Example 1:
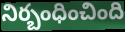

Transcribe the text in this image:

నిర్బంధించింది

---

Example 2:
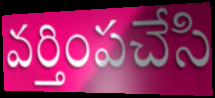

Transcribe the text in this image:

వర్తింపచేసి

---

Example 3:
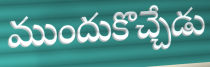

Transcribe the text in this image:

ముందుకొచ్చేడు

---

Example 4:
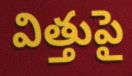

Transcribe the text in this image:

విత్తుపై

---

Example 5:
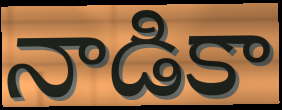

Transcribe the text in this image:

నాడికా